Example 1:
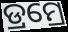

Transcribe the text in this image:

ଡ୍ରମ୍ରେ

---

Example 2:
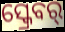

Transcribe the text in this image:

ସ୍କ୍ରେବର୍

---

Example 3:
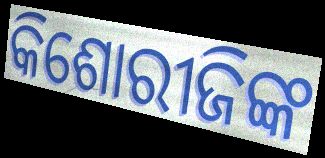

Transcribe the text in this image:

କିଶୋରୀଜିଙ୍କ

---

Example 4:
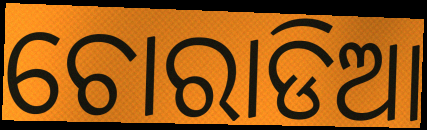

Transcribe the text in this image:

ଚୋରାଡିଆ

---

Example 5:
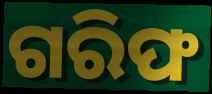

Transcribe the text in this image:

ଗରିଫ